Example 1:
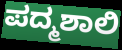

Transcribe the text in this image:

ಪದ್ಮಶಾಲಿ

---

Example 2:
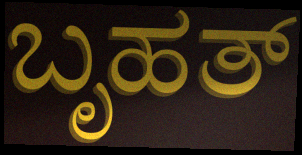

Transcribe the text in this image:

ಬೃಹತ್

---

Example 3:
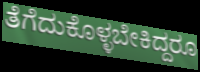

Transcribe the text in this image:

ತೆಗೆದುಕೊಳ್ಳಬೇಕಿದ್ದರೂ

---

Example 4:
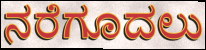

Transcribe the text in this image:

ನರೆಗೂದಲು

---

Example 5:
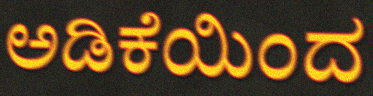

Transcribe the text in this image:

ಅಡಿಕೆಯಿಂದ